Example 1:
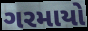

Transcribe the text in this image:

ગરમાયો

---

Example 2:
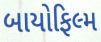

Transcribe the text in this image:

બાયોફિલ્મ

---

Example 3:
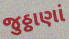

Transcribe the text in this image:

જુઠ્ઠાણાં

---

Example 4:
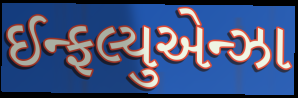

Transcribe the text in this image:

ઈન્ફલ્યુએન્ઝા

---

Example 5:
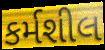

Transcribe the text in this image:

કર્મશીલ